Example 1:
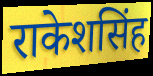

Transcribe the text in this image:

राकेशसिंह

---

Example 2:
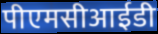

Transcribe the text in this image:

पीएमसीआईडी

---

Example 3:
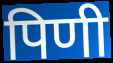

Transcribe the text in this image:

पिणी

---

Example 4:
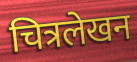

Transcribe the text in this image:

चित्रलेखन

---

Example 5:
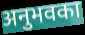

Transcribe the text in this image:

अनुभवका